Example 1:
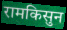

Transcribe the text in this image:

रामकिसुन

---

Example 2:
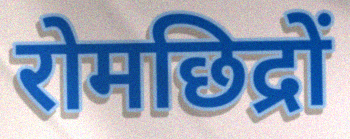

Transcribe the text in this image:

रोमछिद्रों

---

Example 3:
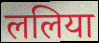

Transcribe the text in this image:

ललिया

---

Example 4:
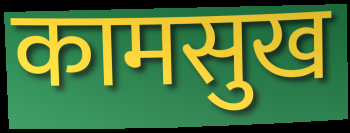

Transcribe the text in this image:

कामसुख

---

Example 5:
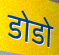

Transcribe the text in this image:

डोडो